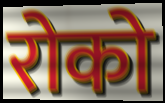
रोको